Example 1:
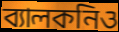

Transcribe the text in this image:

ব্যালকনিও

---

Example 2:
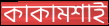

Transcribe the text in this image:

কাকামশাই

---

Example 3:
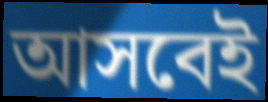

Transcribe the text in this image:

আসবেই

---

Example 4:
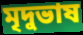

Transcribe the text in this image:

মৃদুভাষ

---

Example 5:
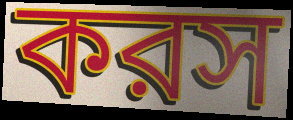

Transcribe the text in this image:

করস